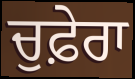
ਚੁਫ਼ੇਰਾ